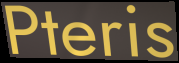
Pteris